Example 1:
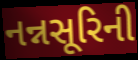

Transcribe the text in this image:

નન્નસૂરિની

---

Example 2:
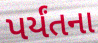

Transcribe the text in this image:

પર્યંતના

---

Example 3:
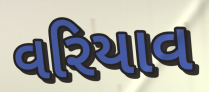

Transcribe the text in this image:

વરિયાવ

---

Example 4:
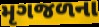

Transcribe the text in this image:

મૃગજળના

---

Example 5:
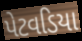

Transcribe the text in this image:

પેટવડિયા